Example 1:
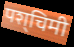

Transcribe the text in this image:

पश्चिमी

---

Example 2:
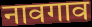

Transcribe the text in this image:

नावगाव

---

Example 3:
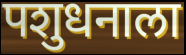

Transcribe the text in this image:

पशुधनाला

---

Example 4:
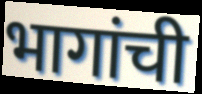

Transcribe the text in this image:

भागांची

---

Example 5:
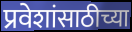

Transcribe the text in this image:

प्रवेशांसाठीच्या